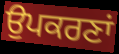
ਉਪਕਰਣਾਂ